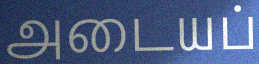
அடையப்